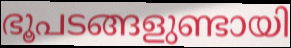
ഭൂപടങ്ങളുണ്ടായി